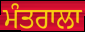
ਮੰਤਰਾਲਾ